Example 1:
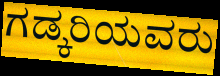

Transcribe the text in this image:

ಗಡ್ಕರಿಯವರು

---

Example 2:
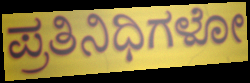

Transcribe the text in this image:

ಪ್ರತಿನಿಧಿಗಳೋ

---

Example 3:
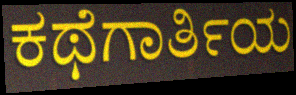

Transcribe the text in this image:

ಕಥೆಗಾರ್ತಿಯ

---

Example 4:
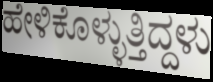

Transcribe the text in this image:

ಹೇಳಿಕೊಳ್ಳುತ್ತಿದ್ದಳು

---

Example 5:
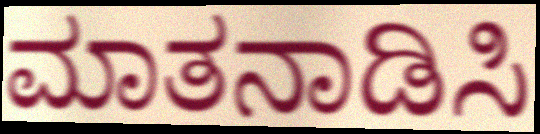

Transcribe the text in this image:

ಮಾತನಾಡಿಸಿ